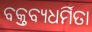
ବକ୍ତବ୍ୟଧର୍ମିତା